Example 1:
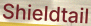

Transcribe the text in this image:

Shieldtail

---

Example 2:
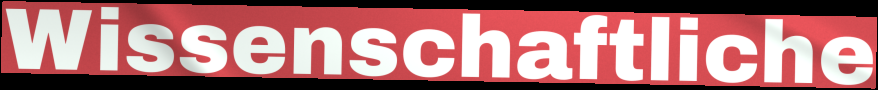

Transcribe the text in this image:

Wissenschaftliche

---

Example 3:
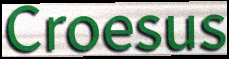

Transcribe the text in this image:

Croesus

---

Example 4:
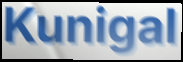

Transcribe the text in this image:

Kunigal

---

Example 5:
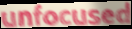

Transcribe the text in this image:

unfocused